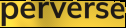
perverse